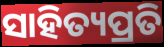
ସାହିତ୍ୟପ୍ରତି